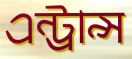
এন্ট্রান্স